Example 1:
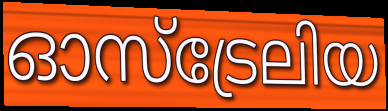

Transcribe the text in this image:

ഓസ്ട്രേലിയ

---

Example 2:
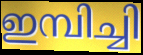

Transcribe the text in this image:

ഇമ്പിച്ചി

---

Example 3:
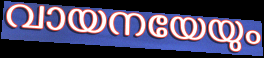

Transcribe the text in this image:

വായനയേയും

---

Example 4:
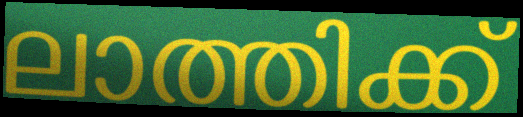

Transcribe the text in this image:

ലാത്തിക്ക്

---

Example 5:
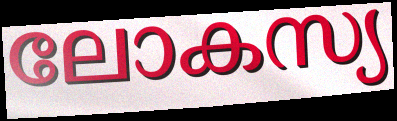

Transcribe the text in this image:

ലോകസ്യ